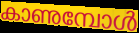
കാണുമ്പോൾ